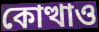
কোত্থাও